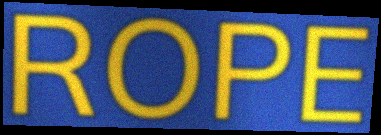
ROPE